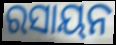
ରସାୟନ